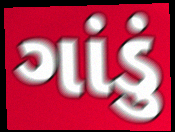
ગાંડું